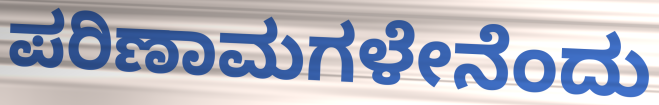
ಪರಿಣಾಮಗಳೇನೆಂದು